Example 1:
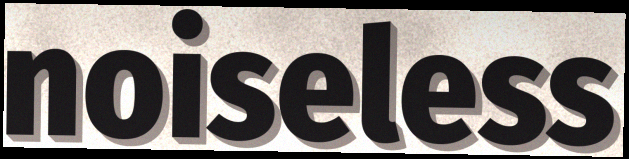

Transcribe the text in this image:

noiseless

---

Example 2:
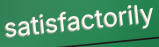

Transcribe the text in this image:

satisfactorily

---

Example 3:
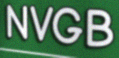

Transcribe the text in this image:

NVGB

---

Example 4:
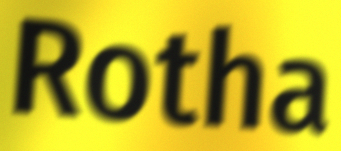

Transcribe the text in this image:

Rotha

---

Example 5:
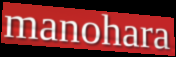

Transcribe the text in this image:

manohara